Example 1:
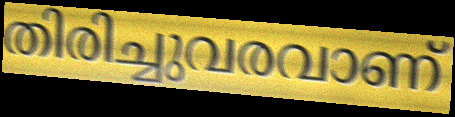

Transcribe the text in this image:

തിരിച്ചുവരവാണ്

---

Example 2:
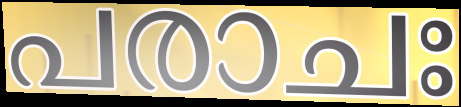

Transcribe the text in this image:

പരാചഃ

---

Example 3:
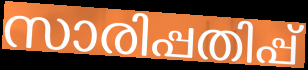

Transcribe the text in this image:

സാരിപ്പതിപ്പ്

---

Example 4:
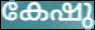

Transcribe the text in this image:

കേഷു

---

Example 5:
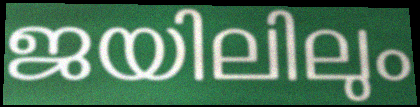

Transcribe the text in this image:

ജയിലിലും